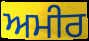
ਅਮੀਰ